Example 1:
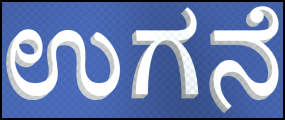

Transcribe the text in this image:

ಉಗನೆ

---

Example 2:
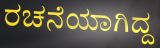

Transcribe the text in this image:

ರಚನೆಯಾಗಿದ್ದ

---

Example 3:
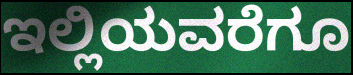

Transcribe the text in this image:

ಇಲ್ಲಿಯವರೆಗೂ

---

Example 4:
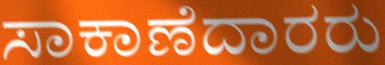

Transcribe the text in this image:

ಸಾಕಾಣೆದಾರರು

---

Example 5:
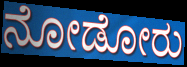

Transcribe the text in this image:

ನೋಡೋರು